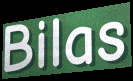
Bilas